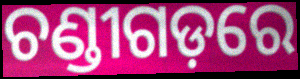
ଚଣ୍ଡୀଗଡ଼ରେ